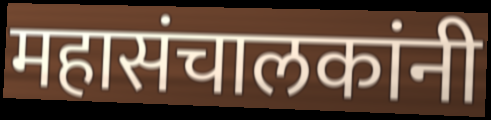
महासंचालकांनी